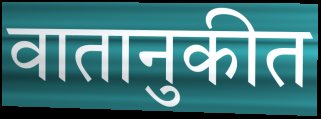
वातानुकीत